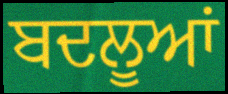
ਬਦਲੂਆਂ